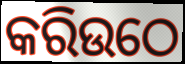
କରିଉଠେ